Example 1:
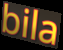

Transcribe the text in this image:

bila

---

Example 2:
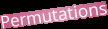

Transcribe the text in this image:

Permutations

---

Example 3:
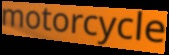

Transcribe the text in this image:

motorcycle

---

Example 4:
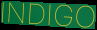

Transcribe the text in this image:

INDIGO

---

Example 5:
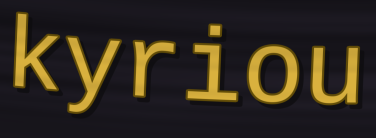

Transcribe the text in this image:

kyriou